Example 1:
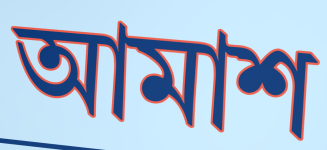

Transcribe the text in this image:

আমাশ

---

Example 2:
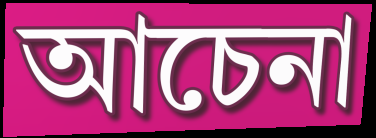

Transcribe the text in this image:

আচেনা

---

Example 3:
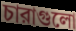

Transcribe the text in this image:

চারাগুলো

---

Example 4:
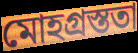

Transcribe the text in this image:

মোহগ্রস্ততা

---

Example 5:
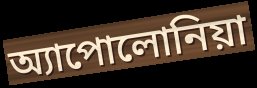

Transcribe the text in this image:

অ্যাপোলোনিয়া